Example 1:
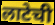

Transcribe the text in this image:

लाटेची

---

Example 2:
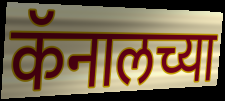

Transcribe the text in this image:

कॅनालच्या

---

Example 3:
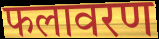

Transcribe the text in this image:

फलावरण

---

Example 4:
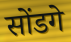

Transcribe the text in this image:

सोंडगे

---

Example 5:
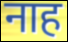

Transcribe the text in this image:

नाह